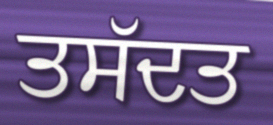
ਤਸੱਦਤ